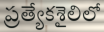
ప్రత్యేకశైలిలో